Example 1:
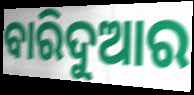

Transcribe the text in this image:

ବାରିଦୁଆର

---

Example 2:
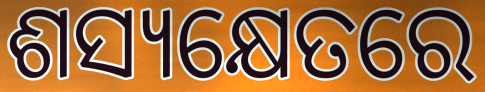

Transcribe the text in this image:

ଶସ୍ୟକ୍ଷେତରେ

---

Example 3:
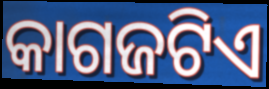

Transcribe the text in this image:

କାଗଜଟିଏ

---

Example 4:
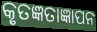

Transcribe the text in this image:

କୃତଜ୍ଞତାଜ୍ଞାପନ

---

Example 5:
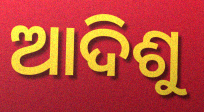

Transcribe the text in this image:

ଆଦିଶୁ